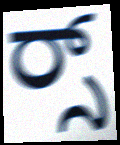
ರ್‍ಸ್